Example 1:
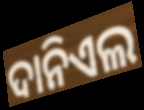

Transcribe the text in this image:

ଦାନିଏଲ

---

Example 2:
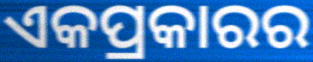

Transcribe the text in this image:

ଏକପ୍ରକାରର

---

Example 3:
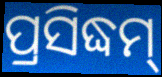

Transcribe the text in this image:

ପ୍ରସିଦ୍ଧମ୍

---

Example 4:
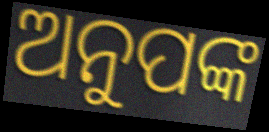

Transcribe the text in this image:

ଅନୁପଙ୍କ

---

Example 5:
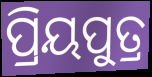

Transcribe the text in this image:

ପ୍ରିୟପୁତ୍ର